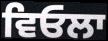
ਵਿਓਲਾ